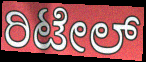
ರಿಟೇಲ್